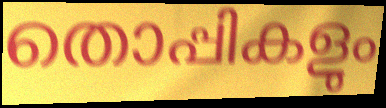
തൊപ്പികളും